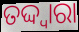
ତଦ୍ଦ୍ଵାରା